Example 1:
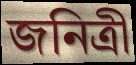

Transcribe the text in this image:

জনিত্রী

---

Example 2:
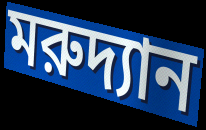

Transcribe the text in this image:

মরুদ্যান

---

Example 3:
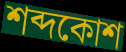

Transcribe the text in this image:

শব্দকোশ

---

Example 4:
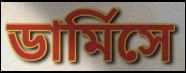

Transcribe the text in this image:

ডার্মিসে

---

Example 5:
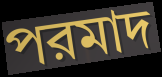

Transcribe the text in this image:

পরমাদ